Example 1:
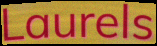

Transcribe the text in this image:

Laurels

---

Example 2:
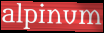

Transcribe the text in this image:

alpinum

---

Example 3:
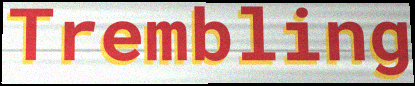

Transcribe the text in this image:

Trembling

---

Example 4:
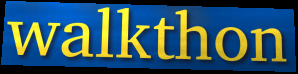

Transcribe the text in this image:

walkthon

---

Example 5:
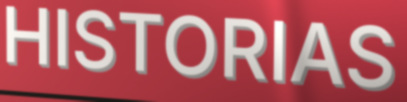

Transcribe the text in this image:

HISTORIAS